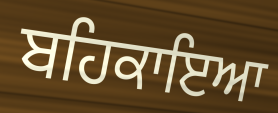
ਬਹਿਕਾਇਆ